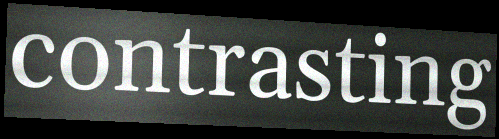
contrasting